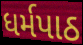
ધર્મપાઠ